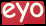
eyo